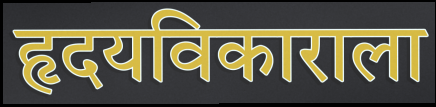
हृदयविकाराला